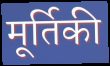
मूर्तिकी